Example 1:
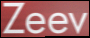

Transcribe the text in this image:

Zeev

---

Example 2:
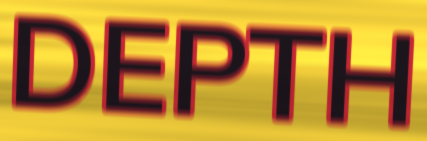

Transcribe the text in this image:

DEPTH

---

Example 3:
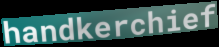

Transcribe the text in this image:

handkerchief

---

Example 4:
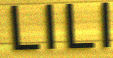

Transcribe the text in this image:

LILI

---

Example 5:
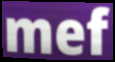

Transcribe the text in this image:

mef